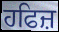
ਹਫਿਜ਼